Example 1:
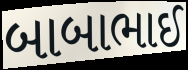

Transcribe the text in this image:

બાબાભાઈ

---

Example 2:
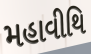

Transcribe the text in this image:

મહાવીથિ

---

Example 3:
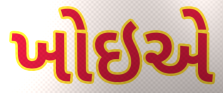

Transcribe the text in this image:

ખોઇએ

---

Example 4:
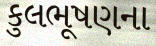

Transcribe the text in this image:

કુલભૂષણના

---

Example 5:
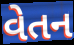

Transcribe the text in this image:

વેતન